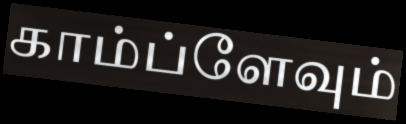
காம்ப்ளேவும்